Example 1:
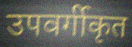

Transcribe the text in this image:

उपवर्गीकृत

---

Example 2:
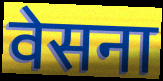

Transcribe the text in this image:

वेसना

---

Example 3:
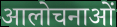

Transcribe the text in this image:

आलोचनाओं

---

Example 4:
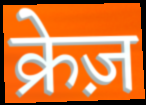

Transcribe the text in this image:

क्रेज़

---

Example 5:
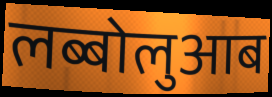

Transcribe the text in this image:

लब्बोलुआब